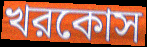
খরকোস